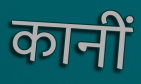
कानीं